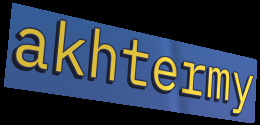
akhtermy